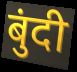
बुंदी